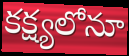
కక్ష్యలోనూ